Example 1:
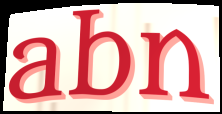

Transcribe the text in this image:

abn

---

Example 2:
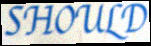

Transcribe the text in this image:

SHOULD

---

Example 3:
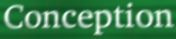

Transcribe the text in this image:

Conception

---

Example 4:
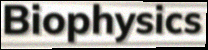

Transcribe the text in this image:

Biophysics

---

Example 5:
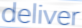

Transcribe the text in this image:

deliver